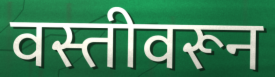
वस्तीवरून